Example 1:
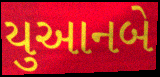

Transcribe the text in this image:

યુઆનબે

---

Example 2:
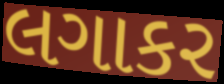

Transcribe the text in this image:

લગાકર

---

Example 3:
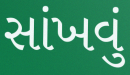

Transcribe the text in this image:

સાંખવું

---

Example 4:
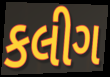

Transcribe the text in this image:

કલીગ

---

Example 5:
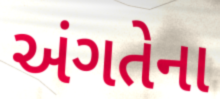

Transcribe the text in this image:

અંગતેના